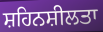
ਸ਼ਹਿਨਸ਼ੀਲਤਾ